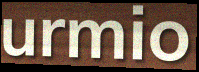
urmio